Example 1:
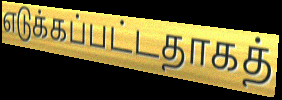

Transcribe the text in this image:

எடுக்கப்பட்டதாகத்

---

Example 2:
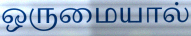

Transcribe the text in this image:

ஒருமையால்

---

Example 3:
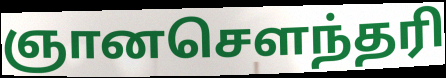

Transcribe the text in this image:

ஞானசெளந்தரி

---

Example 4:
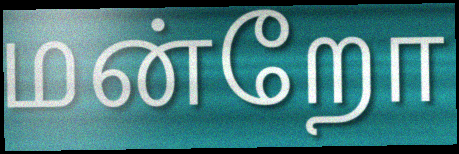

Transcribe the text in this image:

மன்றோ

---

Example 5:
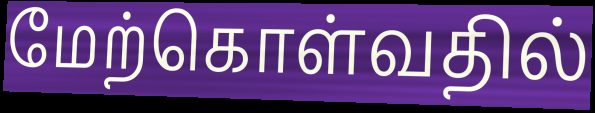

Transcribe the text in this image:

மேற்கொள்வதில்